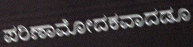
ಪರಿಣಾಮೋದಕವಾದಡೂ